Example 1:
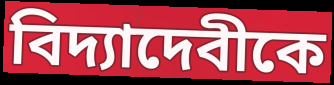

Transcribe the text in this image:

বিদ্যাদেবীকে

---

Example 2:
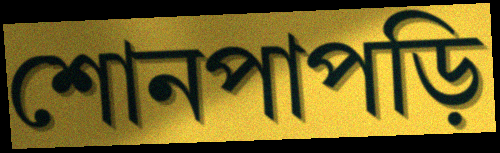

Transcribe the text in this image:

শোনপাপড়ি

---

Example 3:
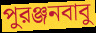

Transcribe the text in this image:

পুরঞ্জনবাবু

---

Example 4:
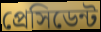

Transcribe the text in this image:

প্রেসিডেন্ট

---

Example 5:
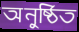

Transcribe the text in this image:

অনুষ্ঠিত